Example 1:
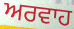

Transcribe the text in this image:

ਅਰਵਾਹ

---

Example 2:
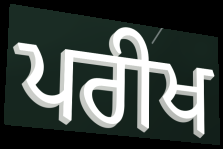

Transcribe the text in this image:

ਪਰੀਖ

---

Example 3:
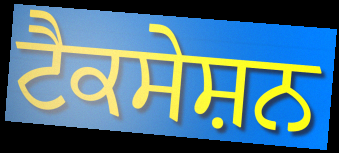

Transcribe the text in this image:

ਟੈਕਸੇਸ਼ਨ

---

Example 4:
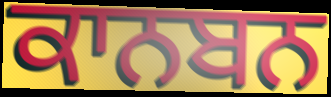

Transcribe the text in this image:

ਕਾਨਬਨ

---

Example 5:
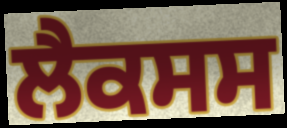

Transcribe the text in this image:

ਲੈਕਸਸ